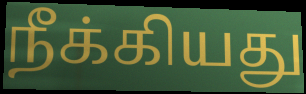
நீக்கியது